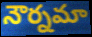
నౌర్నమా